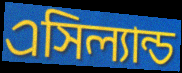
এসিল্যান্ড